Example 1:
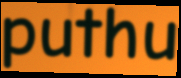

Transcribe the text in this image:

puthu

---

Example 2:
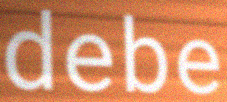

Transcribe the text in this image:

debe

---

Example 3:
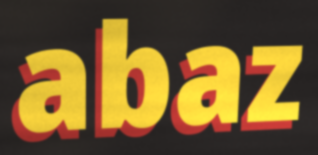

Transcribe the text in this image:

abaz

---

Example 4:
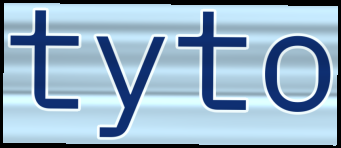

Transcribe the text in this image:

tyto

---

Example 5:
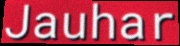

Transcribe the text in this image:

Jauhar